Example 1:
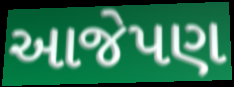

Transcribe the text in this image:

આજેપણ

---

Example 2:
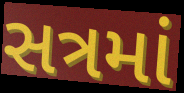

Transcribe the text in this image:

સત્રમાં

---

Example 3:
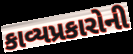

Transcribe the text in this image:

કાવ્યપ્રકારોની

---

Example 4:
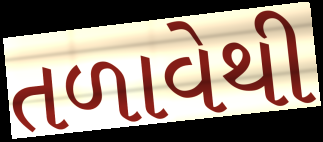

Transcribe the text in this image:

તળાવેથી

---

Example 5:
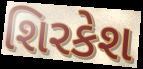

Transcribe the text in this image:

શિરકેશ